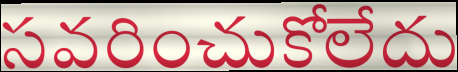
సవరించుకోలేదు